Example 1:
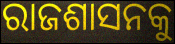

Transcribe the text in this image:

ରାଜଶାସନକୁ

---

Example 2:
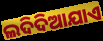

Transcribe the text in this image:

ଲଦିଦିଆଯାଏ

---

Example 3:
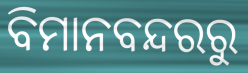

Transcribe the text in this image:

ବିମାନବନ୍ଦରରୁ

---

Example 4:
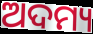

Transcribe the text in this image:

ଅଦମ୍ୟ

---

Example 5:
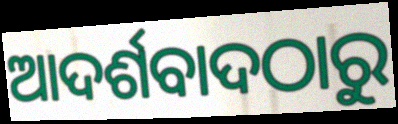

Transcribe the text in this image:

ଆଦର୍ଶବାଦଠାରୁ